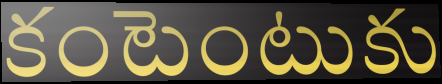
కంటెంటుకు